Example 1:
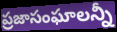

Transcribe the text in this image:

ప్రజాసంఘాలన్నీ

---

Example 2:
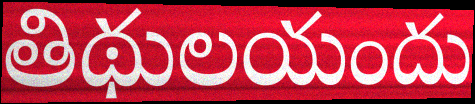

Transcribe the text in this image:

తిథులయందు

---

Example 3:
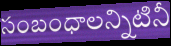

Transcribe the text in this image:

సంబంధాలన్నిటినీ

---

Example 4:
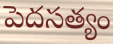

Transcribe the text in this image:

పెదసత్యం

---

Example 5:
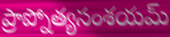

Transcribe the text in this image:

ప్రాప్నోత్యసంశయమ్